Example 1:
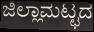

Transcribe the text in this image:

ಜಿಲ್ಲಾಮಟ್ಟದ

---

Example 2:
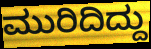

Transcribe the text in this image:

ಮುರಿದಿದ್ದು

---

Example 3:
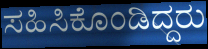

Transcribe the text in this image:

ಸಹಿಸಿಕೊಂಡಿದ್ದರು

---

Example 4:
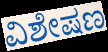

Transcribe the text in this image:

ವಿಶೇಷಣ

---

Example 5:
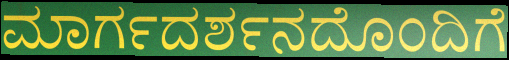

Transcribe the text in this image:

ಮಾರ್ಗದರ್ಶನದೊಂದಿಗೆ